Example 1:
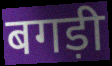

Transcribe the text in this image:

बगड़ी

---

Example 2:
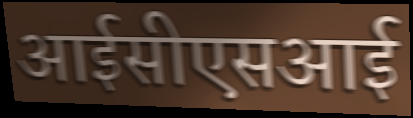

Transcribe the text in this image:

आईसीएसआई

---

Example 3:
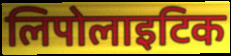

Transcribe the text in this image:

लिपोलाइटिक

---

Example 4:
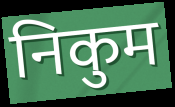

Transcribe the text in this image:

निकुम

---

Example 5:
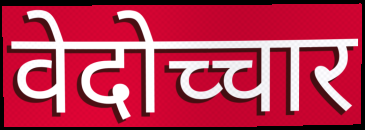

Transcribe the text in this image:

वेदोच्चार